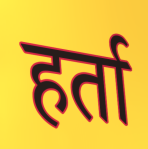
हर्ता